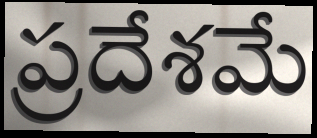
ప్రదేశమే